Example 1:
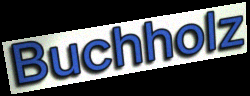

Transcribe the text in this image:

Buchholz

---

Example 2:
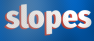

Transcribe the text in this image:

slopes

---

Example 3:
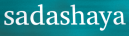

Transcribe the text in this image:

sadashaya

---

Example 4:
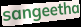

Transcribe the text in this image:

sangeetha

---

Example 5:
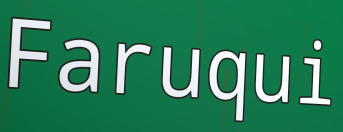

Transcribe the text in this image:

Faruqui